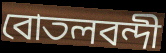
বোতলবন্দী